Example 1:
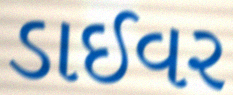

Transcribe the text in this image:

ડાઈવર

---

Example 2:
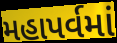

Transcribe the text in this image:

મહાપર્વમાં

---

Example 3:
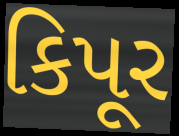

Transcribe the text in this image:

કિપૂર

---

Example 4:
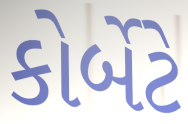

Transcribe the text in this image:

કોર્બેટે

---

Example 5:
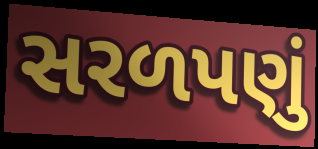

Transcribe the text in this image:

સરળપણું